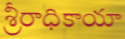
శ్రీరాధికాయా